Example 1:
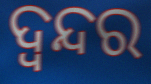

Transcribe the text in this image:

ଦ୍ବନ୍ଦର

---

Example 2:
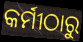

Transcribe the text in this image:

କର୍ମୀଠାରୁ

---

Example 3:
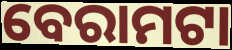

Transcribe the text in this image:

ବେରାମଟା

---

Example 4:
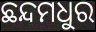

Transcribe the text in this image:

ଛନ୍ଦମଧୁର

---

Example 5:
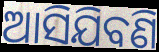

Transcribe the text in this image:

ଆସିଯିବଣି